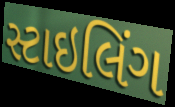
સ્ટાઇલિંગ